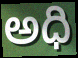
అధి